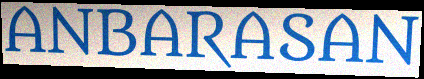
ANBARASAN